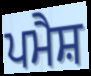
ਪਮੈਸ਼